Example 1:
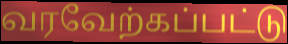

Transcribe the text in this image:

வரவேற்கப்பட்டு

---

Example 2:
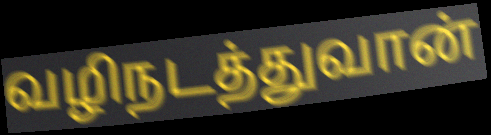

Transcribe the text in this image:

வழிநடத்துவான்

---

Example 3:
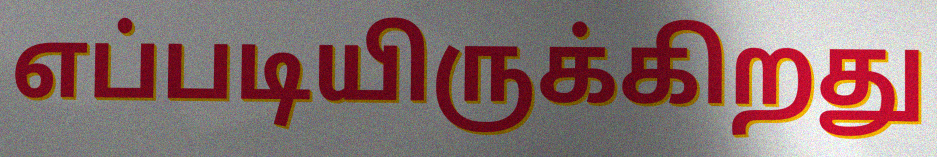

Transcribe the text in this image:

எப்படியிருக்கிறது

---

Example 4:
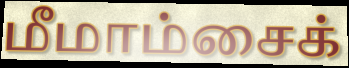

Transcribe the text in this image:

மீமாம்சைக்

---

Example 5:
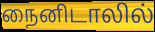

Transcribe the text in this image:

நைனிடாலில்